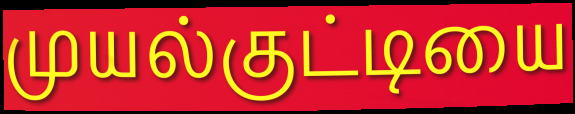
முயல்குட்டியை